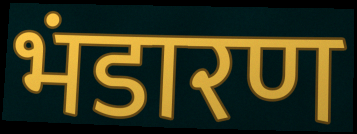
भंडारण